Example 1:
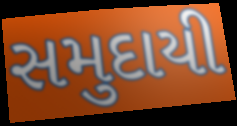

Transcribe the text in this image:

સમુદાયી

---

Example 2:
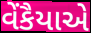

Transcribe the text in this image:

વેંકૈયાએ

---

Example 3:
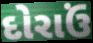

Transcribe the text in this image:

દોરાઉં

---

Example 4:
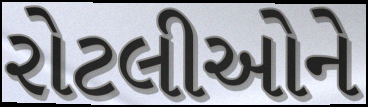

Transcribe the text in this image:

રોટલીઓને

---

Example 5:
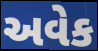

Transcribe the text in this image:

અવેક